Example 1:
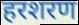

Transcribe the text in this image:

हरशरण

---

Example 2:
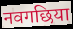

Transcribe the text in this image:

नवगछिया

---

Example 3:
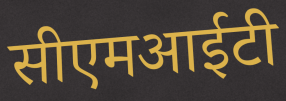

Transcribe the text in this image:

सीएमआईटी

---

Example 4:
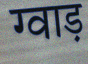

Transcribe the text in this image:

ग्वाड़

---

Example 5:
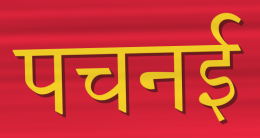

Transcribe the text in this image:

पचनई